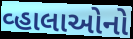
વ્હાલાઓનો